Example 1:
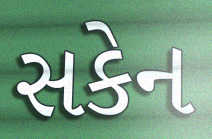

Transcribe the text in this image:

સકેન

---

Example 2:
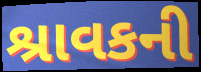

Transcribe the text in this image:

શ્રાવકની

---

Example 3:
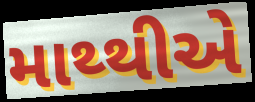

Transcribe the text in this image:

માથ્થીએ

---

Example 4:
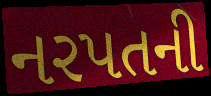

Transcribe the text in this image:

નરપતની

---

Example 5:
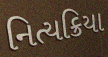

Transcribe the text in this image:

નિત્યક્રિયા